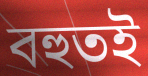
বহুতই